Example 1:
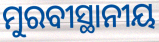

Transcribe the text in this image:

ମୁରବୀସ୍ଥାନୀୟ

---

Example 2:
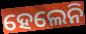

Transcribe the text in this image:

ହେଲେନି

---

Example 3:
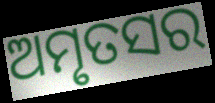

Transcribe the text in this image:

ଅମୃତସର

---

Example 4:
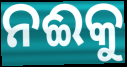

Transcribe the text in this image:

ନଈକୁ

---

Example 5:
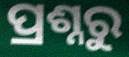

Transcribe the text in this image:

ପ୍ରଶ୍ନରୁ